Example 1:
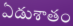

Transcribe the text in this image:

ఏడుశాతం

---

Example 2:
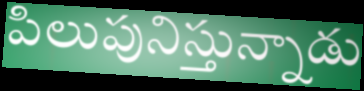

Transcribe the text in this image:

పిలుపునిస్తున్నాడు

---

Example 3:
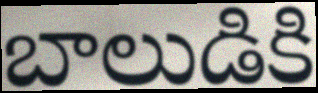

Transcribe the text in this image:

బాలుడికి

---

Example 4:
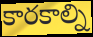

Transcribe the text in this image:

కారకాల్ని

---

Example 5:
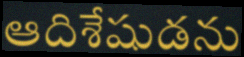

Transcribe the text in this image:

ఆదిశేషుడను